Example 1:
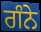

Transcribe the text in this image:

ਗੰਨੇ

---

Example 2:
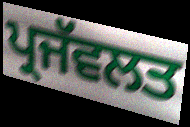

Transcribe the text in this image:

ਪ੍ਰਜੱਵਲਤ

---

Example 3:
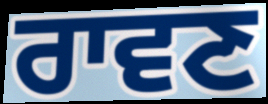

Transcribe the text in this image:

ਰਾਵਣ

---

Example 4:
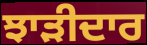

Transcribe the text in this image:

ਝਾੜੀਦਾਰ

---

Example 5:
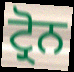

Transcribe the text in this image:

ਟ੍ਰੋਨ